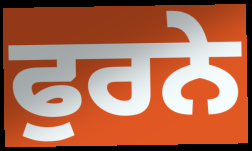
ਫੁਰਨੇ